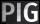
PIG